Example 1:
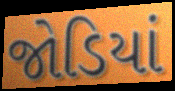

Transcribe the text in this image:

જોડિયાં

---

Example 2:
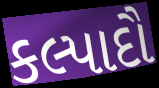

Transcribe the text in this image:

કલ્પાદૌ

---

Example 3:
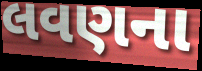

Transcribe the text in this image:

લવણના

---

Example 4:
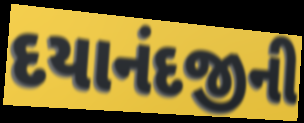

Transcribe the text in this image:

દયાનંદજીની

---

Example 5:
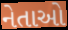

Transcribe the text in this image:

નેતાઓ